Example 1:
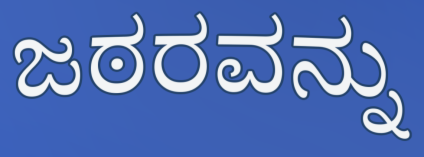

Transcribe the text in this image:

ಜಠರವನ್ನು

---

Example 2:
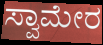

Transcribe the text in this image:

ಸ್ವಾಮೇರ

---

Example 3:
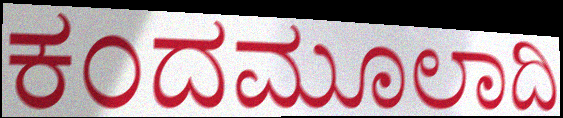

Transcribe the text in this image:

ಕಂದಮೂಲಾದಿ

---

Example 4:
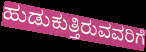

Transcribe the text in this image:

ಹುಡುಕುತ್ತಿರುವವರಿಗೆ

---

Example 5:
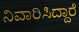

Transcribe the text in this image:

ನಿವಾರಿಸಿದ್ದಾರೆ